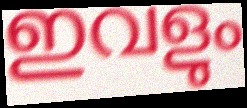
ഇവളും